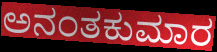
ಅನಂತಕುಮಾರ